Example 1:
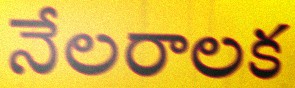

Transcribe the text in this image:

నేలరాలక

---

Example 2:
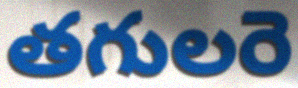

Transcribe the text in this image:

తగులరె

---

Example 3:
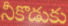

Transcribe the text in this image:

నీకొడుకు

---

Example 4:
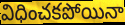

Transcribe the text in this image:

విధించకపోయినా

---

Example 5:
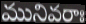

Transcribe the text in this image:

మునివరాః